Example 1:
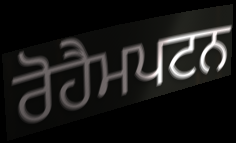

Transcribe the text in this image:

ਰੋਹੈਮਪਟਨ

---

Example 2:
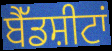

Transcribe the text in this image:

ਬੈੱਡਸ਼ੀਟਾਂ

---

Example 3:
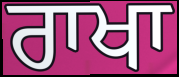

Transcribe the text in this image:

ਰਾਖਾ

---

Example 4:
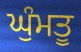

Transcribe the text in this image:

ਘੁੰਮਤੂ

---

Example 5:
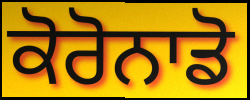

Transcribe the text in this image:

ਕੋਰੋਨਾਡੋ